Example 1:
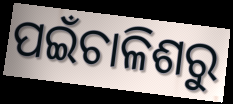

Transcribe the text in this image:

ପଇଁଚାଳିଶରୁ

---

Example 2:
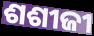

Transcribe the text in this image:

ଶଶୀଜୀ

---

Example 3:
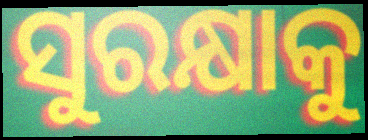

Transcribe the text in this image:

ସୁରକ୍ଷାକୁ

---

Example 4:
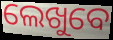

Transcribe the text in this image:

ଲେଖୁବେ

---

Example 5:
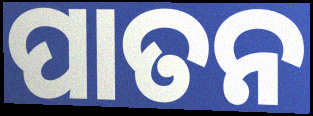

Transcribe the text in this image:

ପାତନ